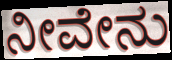
ನೀವೇನು